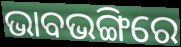
ଭାବଭଙ୍ଗିରେ